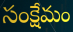
సంక్షేమం